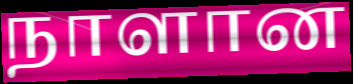
நாளான